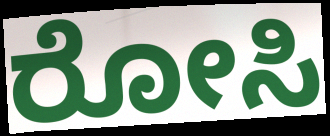
ರೋಸಿ